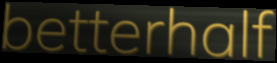
betterhalf